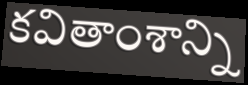
కవితాంశాన్ని